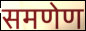
समणेण